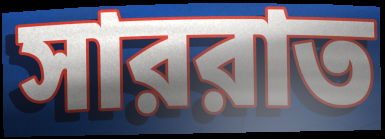
সাররাত